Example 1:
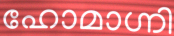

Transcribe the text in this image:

ഹോമാഗ്നി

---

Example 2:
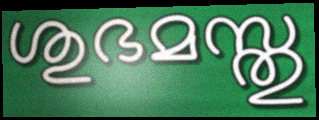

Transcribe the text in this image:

ശുഭമസ്തു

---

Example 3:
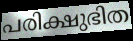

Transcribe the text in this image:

പരിക്ഷുഭിത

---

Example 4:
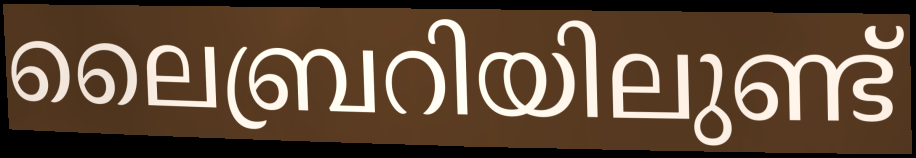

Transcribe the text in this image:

ലൈബ്രറിയിലുണ്ട്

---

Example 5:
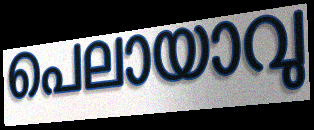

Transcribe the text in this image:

പെലായാവു